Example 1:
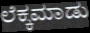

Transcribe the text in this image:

ಲೆಕ್ಕಮಾಡು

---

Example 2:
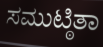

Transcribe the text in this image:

ಸಮುಟ್ಠಿತಾ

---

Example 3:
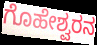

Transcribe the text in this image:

ಗೊಹೇಶ್ವರನ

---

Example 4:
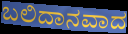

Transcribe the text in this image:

ಬಲಿದಾನವಾದ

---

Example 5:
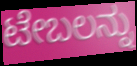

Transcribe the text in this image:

ಟೇಬಲನ್ನು